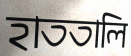
হাততালি